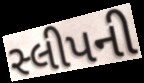
સ્લીપની